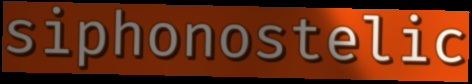
siphonostelic